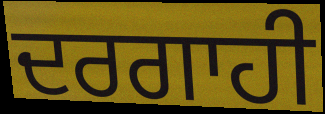
ਦਰਗਾਹੀ